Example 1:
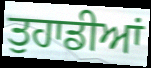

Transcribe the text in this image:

ਤੁਹਾਡੀਆਂ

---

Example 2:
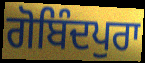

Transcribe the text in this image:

ਗੋਬਿੰਦਪੁਰਾ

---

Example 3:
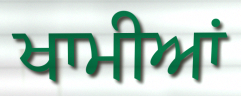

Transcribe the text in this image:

ਖਾਮੀਆਂ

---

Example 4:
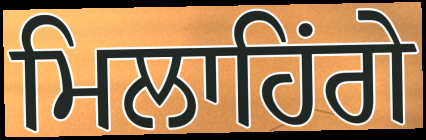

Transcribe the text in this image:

ਮਿਲਾਹਿਂਗੇ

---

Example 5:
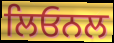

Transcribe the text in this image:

ਲਿਓਨਲ